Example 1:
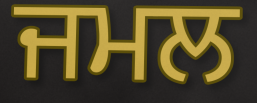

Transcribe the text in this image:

ਜਮਲ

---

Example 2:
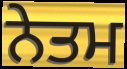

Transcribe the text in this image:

ਨੇਤਮ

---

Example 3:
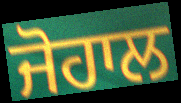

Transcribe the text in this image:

ਜੋਹਾਲ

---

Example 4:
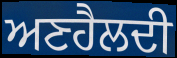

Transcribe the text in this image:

ਅਣਹੈਲਦੀ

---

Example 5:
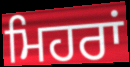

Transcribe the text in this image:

ਮਿਹਰਾਂ